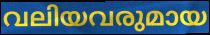
വലിയവരുമായ